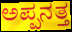
ಅಪ್ಪನತ್ತ